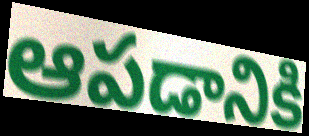
ఆపడానికి